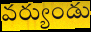
వర్యుండు